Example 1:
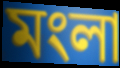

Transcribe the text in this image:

মংলা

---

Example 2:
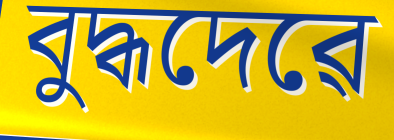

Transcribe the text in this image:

বুদ্ধদেৱে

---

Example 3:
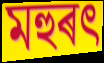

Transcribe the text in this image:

মহুৰৎ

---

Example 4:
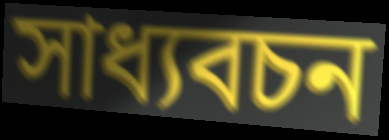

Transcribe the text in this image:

সাধ্যবচন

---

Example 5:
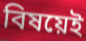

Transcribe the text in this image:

বিষয়েই